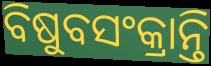
ବିଷୁବସଂକ୍ରାନ୍ତି